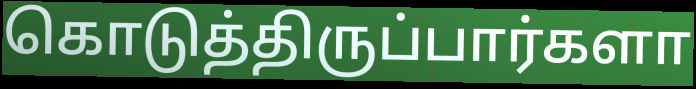
கொடுத்திருப்பார்களா